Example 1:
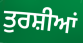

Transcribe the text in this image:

ਤੁਰਸ਼ੀਆਂ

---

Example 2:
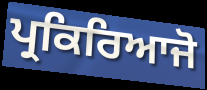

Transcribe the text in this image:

ਪ੍ਰਕਿਰਿਆਜੋ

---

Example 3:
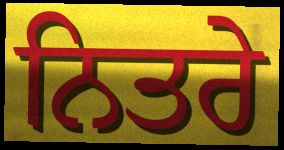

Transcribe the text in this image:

ਨਿਤਰੇ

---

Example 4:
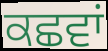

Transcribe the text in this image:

ਕਛਵਾਂ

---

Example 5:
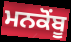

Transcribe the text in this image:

ਮਨਕੋਂਬੂ